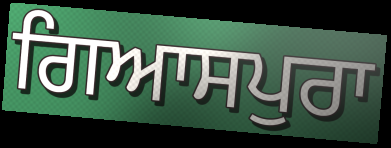
ਗਿਆਸਪੁਰਾ